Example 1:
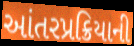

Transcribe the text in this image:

આંતરપ્રક્રિયાની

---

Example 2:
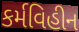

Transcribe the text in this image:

કર્મવિહીન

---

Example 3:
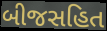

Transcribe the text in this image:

બીજસહિત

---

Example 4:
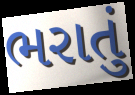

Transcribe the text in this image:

ભરાતું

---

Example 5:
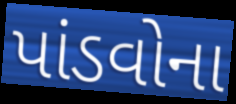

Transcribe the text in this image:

પાંડવોના